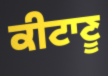
ਕੀਟਾਣੂ